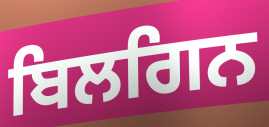
ਬਿਲਗਿਨ